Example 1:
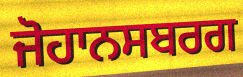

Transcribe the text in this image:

ਜੋਹਾਨਸਬਰਗ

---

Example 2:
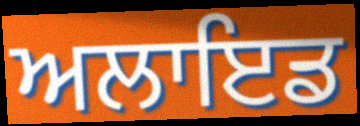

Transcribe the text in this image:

ਅਲਾਇਡ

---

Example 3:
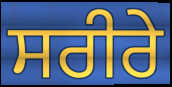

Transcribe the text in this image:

ਸਰੀਰੇ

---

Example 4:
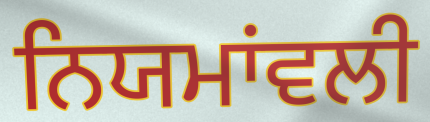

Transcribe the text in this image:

ਨਿਯਮਾਂਵਲੀ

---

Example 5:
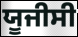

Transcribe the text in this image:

ਯੂਜੀਸੀ